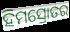
ହିମସ୍ରୋତର